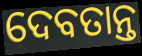
ଦେବତାନ୍ତ